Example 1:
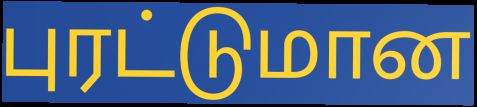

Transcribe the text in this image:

புரட்டுமான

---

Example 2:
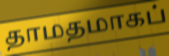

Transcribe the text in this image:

தாமதமாகப்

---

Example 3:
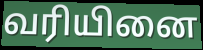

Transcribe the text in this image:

வரியினை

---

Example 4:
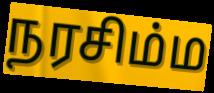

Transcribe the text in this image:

நரசிம்ம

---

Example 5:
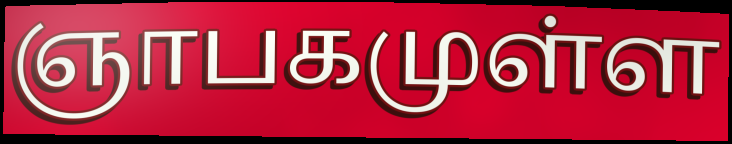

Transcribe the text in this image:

ஞாபகமுள்ள